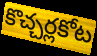
కొచ్చర్లకోట